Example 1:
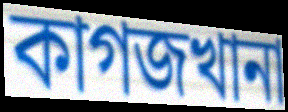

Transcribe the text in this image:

কাগজখানা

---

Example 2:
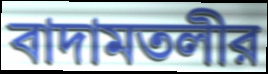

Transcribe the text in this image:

বাদামতলীর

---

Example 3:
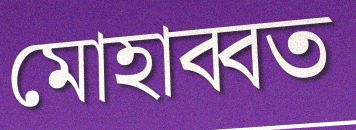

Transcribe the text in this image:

মোহাব্বত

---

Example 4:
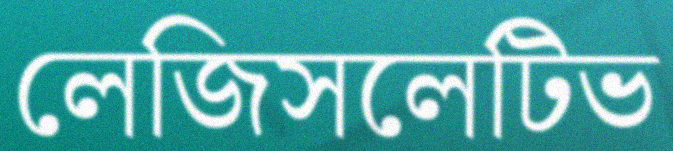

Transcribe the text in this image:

লেজিসলেটিভ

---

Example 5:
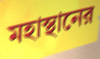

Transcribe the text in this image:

মহাস্থানের